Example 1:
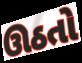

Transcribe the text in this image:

ઊઠતો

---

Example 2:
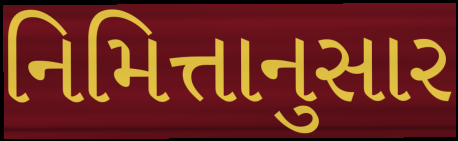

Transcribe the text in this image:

નિમિત્તાનુસાર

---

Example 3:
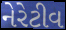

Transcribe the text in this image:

નેરેટીવ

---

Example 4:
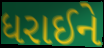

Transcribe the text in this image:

ધરાઈને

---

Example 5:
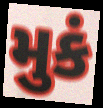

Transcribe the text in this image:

મુકં